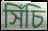
সিঁচি